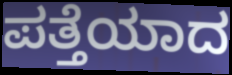
ಪತ್ತೆಯಾದ